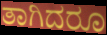
ತಾಗಿದರೂ